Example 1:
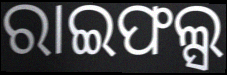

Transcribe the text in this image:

ରାଇଫଲ୍ସ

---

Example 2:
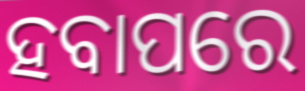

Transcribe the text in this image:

ହବାପରେ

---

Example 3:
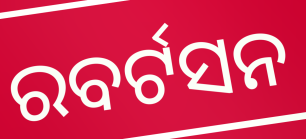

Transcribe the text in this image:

ରବର୍ଟସନ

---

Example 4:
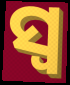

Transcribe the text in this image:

ସ୍ୱ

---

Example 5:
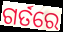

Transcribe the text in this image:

ଗର୍ତରେ